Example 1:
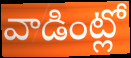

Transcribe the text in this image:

వాడింట్లో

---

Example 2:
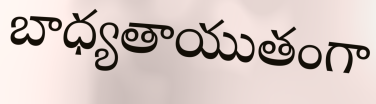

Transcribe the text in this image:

బాధ్యతాయుతంగా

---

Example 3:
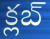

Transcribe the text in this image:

క్లబ్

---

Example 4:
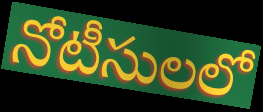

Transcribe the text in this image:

నోటీసులలో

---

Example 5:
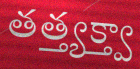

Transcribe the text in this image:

తత్త్యక్త్వా